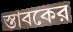
স্তাবকের